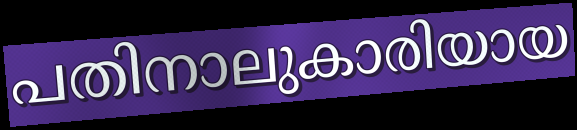
പതിനാലുകാരിയായ